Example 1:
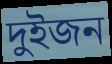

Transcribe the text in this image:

দুইজন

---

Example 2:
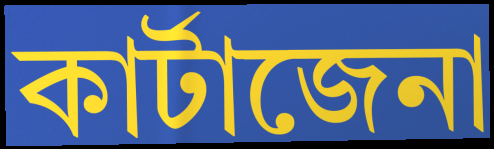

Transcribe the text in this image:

কাৰ্টাজেনা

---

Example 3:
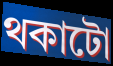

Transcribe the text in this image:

থকাটো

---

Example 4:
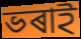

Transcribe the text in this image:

ভৰাই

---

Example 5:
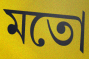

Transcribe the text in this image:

মতো